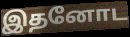
இதனோட